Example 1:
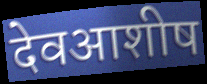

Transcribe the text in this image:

देवआशीष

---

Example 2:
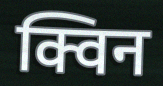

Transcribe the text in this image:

क्विन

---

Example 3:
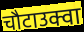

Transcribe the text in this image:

चौटाउक्वा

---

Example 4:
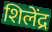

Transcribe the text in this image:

शिलेंद्र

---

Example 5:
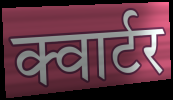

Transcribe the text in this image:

क्‍वार्टर